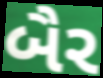
બૈર